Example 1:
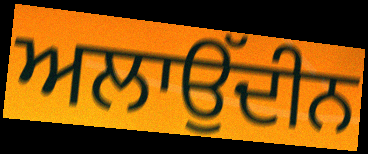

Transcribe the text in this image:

ਅਲਾਉੱਦੀਨ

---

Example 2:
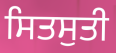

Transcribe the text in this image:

ਸਿਤਸੁਤੀ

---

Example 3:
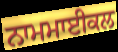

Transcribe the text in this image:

ਨਾਮਮਾਈਕਲ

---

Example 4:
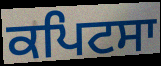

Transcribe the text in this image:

ਕਪਿਟਸਾ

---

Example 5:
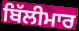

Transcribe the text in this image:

ਬਿੱਲੀਮਾਰ